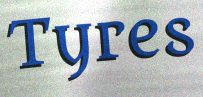
Tyres